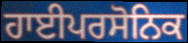
ਹਾਈਪਰਸੋਨਿਕ